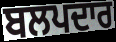
ਬਲਪਦਾਰ